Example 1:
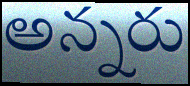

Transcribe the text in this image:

అన్నరు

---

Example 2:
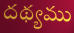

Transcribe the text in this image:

దథ్యము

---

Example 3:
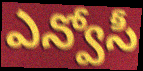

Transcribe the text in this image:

ఎన్వోసీ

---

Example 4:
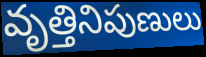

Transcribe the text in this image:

వృత్తినిపుణులు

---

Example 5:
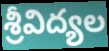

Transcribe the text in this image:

శ్రీవిద్యల